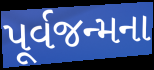
પૂર્વજન્મના